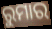
ରୁମାର